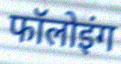
फॉलोइंग